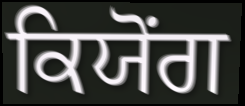
ਕਿਯੋਂਗ